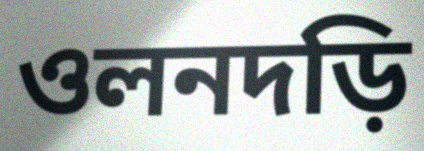
ওলনদড়ি